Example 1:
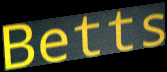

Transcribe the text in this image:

Betts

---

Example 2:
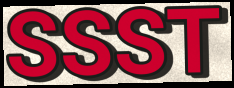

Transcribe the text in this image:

SSST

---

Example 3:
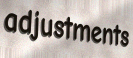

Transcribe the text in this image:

adjustments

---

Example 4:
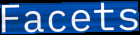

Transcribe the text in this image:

Facets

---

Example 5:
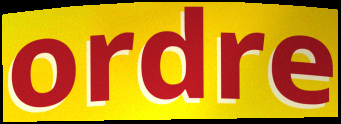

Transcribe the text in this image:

ordre